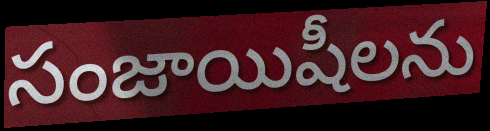
సంజాయిషీలను